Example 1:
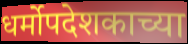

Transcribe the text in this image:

धर्मोपदेशकाच्या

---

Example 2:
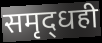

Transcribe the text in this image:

समृद्धही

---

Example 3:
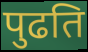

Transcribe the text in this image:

पुढति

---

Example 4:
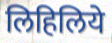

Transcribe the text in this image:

लिहिलिये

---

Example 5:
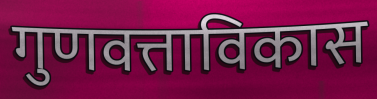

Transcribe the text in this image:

गुणवत्ताविकास